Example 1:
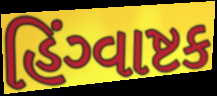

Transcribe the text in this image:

હિંગ્વાષ્ટક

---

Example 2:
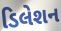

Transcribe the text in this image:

ડિલેશન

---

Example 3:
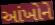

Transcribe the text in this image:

આંખોને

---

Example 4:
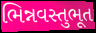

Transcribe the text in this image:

ભિન્નવસ્તુભૂત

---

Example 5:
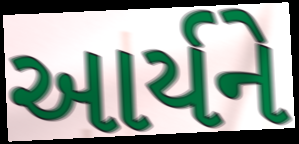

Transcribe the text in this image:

આર્યને